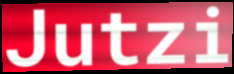
Jutzi